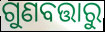
ଗୁଣବତ୍ତାରୁ